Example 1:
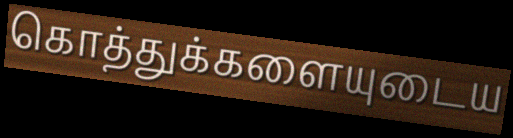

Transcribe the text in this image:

கொத்துக்களையுடைய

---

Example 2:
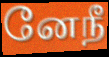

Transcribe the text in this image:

னேநீ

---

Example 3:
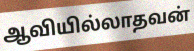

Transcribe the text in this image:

ஆவியில்லாதவன்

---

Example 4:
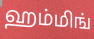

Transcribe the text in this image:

ஹம்மிங்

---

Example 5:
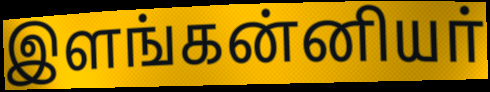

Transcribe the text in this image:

இளங்கன்னியர்